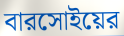
বারসোইয়ের